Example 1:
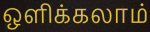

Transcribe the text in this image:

ஒளிக்கலாம்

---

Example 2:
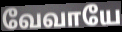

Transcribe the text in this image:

வேவாயே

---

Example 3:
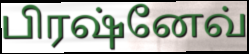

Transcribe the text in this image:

பிரஷ்னேவ்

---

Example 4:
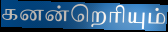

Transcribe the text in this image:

கனன்றெரியும்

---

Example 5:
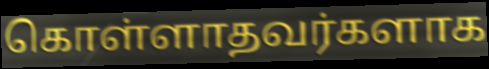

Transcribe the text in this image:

கொள்ளாதவர்களாக